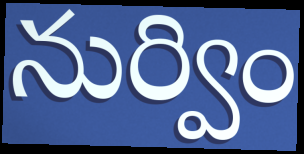
నుర్విం